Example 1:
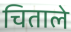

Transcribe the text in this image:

चिताले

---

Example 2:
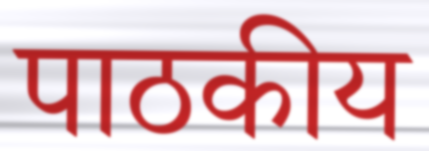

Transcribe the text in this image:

पाठकीय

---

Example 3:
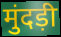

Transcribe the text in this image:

मुंदड़ी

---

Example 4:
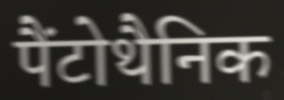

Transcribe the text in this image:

पैंटोथैनिक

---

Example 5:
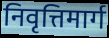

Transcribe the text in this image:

निवृत्तिमार्ग